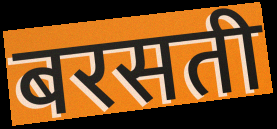
बरसती